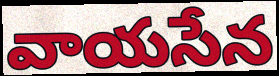
వాయసేన